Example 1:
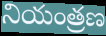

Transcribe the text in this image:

నియంత్రణ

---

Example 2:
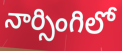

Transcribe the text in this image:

నార్సింగిలో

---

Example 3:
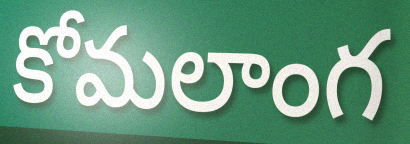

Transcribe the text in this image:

కోమలాంగ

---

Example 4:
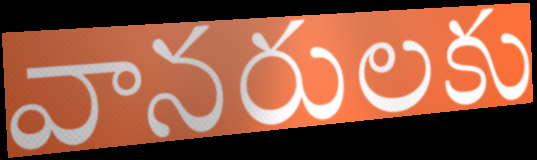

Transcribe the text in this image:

వానరులకు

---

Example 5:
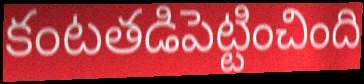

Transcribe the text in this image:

కంటతడిపెట్టించింది